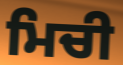
ਮਿਚੀ